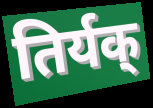
तिर्यक्